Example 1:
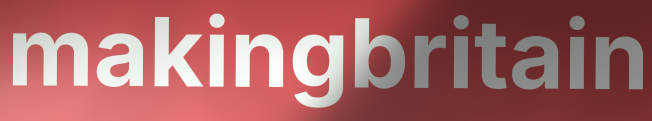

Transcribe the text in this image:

makingbritain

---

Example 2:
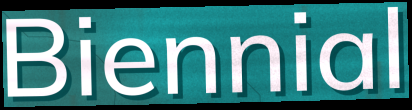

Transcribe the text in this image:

Biennial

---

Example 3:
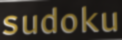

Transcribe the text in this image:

sudoku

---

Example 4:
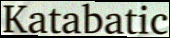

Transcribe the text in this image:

Katabatic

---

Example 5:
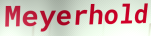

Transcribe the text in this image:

Meyerhold